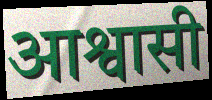
आश्वासी